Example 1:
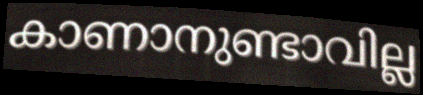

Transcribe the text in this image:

കാണാനുണ്ടാവില്ല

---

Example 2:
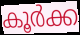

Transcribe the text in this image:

കൂർക്ക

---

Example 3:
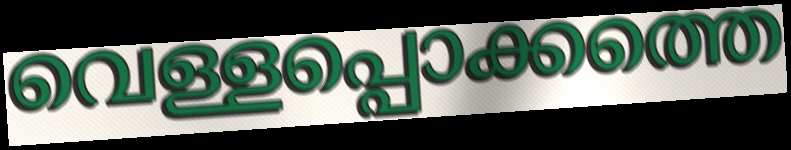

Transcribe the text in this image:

വെള്ളപ്പൊക്കത്തെ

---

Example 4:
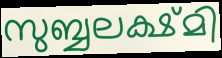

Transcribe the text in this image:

സുബ്ബലക്ഷ്മി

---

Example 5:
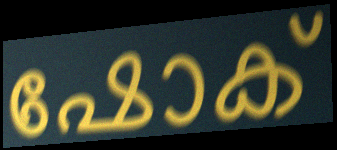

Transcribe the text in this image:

ഷോക്